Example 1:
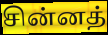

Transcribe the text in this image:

சின்னத்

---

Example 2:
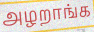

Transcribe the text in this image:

அழறாங்க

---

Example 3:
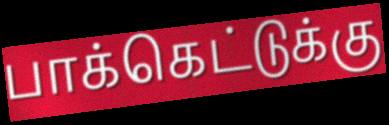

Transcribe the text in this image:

பாக்கெட்டுக்கு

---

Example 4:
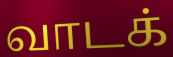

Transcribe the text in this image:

வாடக்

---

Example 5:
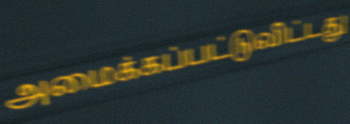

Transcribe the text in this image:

அமைக்கப்பட்டுவிட்டது